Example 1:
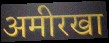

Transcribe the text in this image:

अमीरखा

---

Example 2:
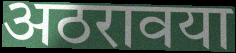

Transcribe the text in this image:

अठरावया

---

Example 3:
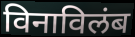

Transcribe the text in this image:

विनाविलंब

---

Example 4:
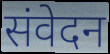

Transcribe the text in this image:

संवेदन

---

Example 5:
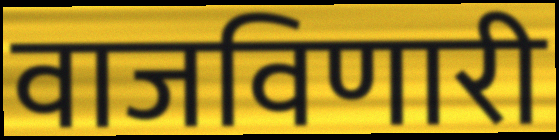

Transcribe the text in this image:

वाजविणारी